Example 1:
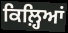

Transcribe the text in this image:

ਕਿਲ਼੍ਹਿਆਂ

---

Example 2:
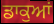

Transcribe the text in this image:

ਡਾਕੁਆਂ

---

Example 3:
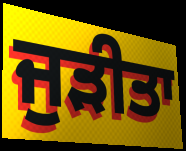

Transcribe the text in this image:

ਜੁੜੀਤਾ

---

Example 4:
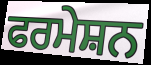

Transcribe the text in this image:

ਫਰਮੇਸ਼ਨ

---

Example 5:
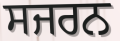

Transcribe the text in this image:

ਸਜਰਨ